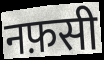
नफ़सी